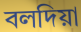
বলদিয়া